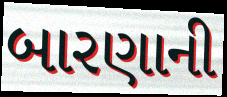
બારણાની